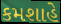
કમશાહે